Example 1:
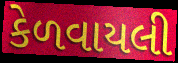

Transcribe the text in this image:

કેળવાયલી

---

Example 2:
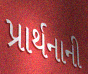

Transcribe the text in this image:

પ્રાર્થનાની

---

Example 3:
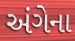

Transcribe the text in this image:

અંગેના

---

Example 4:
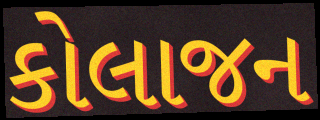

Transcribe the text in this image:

કોલાજન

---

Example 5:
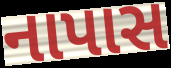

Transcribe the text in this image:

નાપાસ